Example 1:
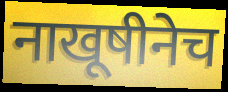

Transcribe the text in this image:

नाखूषीनेच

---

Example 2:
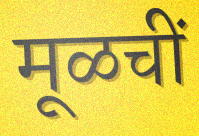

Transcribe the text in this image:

मूळचीं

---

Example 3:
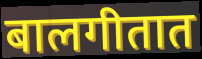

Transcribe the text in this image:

बालगीतात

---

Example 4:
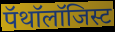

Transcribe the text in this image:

पॅथॉलॉजिस्ट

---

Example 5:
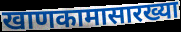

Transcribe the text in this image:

खाणकामासारख्या